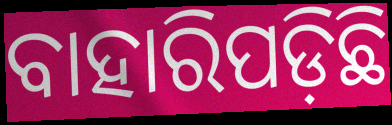
ବାହାରିପଡ଼ିଛି